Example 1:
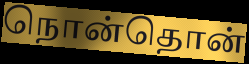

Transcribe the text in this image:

நொன்தொன்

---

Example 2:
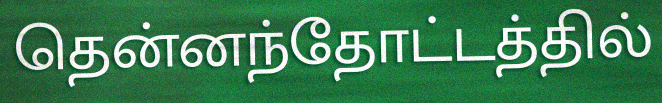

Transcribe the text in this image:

தென்னந்தோட்டத்தில்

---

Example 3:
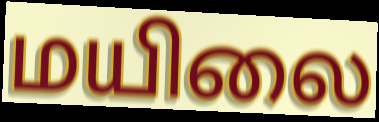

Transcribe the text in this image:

மயிலை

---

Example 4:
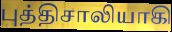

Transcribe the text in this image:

புத்திசாலியாகி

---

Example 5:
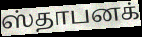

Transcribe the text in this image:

ஸ்தாபனக்